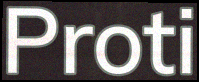
Proti